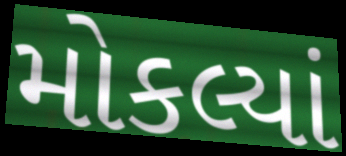
મોકલ્યાં